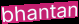
bhantan